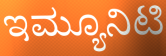
ಇಮ್ಯೂನಿಟಿ